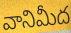
వానిమీద